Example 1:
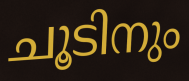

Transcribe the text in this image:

ചൂടിനും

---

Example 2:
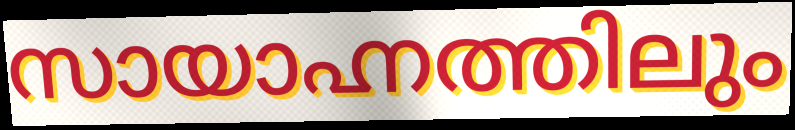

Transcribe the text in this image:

സായാഹ്നത്തിലും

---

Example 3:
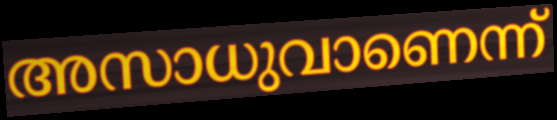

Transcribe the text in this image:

അസാധുവാണെന്ന്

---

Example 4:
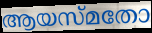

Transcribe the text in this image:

ആയസ്മതോ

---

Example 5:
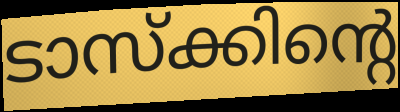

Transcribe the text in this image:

ടാസ്ക്കിന്റെ